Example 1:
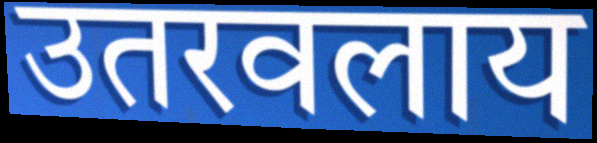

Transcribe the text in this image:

उतरवलाय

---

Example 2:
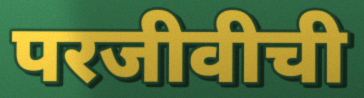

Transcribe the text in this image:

परजीवीची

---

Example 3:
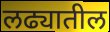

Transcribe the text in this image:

लढ्यातील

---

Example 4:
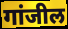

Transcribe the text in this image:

गांजील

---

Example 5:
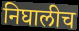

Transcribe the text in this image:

निघालीच